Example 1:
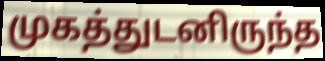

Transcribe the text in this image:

முகத்துடனிருந்த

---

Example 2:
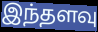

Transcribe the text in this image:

இந்தளவு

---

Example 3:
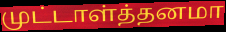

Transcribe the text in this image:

முட்டாள்த்தனமா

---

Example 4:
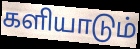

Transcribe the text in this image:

களியாடும்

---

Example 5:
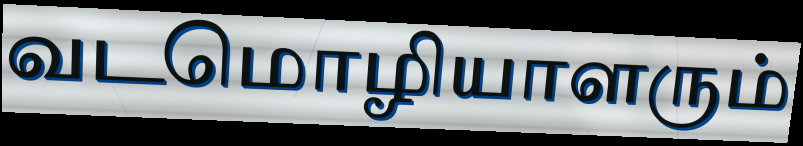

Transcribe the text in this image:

வடமொழியாளரும்